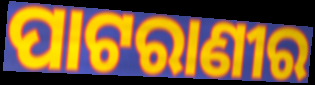
ପାଟରାଣୀର